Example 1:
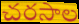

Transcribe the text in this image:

చరసాల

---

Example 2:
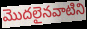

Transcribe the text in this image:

మొదలైనవాటిని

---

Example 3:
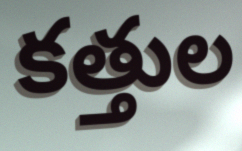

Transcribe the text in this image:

కత్తుల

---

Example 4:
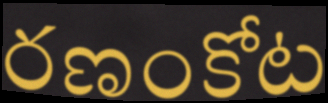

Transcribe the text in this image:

రణంకోట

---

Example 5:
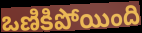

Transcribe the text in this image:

ఒణికిపోయింది